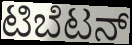
ಟಿಬೆಟನ್